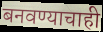
बनवण्याचाही